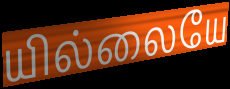
யில்லையே